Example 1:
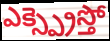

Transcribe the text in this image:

ఎక్స్ప్రెస్తో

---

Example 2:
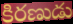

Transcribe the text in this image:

కిరణుడు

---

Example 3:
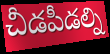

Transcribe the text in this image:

చీడపీడల్ని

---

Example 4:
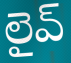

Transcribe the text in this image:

లైవ్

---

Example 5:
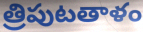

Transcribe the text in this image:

త్రిపుటతాళం